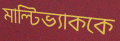
মাল্টিভ্যাককে